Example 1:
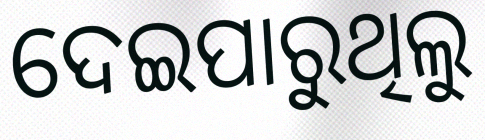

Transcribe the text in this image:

ଦେଇପାରୁଥିଲୁ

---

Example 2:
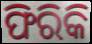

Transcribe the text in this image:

ଫିରିକି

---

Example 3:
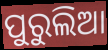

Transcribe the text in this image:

ପୁରୁଲିଆ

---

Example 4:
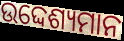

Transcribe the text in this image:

ଉଦ୍ଦେଶ୍ୟମାନ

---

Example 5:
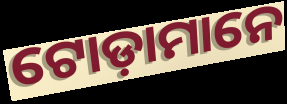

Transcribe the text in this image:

ଟୋଡ଼ାମାନେ